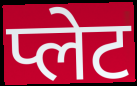
प्‍लेट